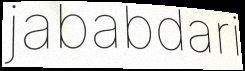
jababdari